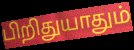
பிறிதுயாதும்